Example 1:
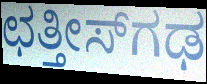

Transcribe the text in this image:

ಛತ್ತೀಸ್‍ಗಢ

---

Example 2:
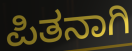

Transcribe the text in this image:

ಪಿತನಾಗಿ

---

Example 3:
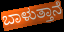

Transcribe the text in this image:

ಬಾಳುತ್ತಾನೆ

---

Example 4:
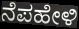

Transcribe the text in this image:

ನೆಪಹೇಳಿ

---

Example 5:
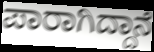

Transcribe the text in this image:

ಪಾರಾಗಿದ್ದಾನೆ